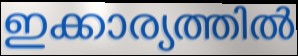
ഇക്കാര്യത്തിൽ